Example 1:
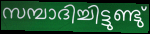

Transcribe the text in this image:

സമ്പാദിച്ചിട്ടുണ്ടു്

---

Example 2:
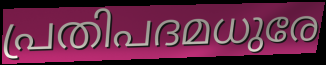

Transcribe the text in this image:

പ്രതിപദമധുരേ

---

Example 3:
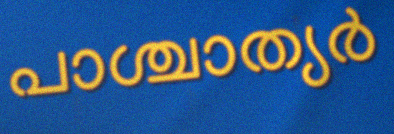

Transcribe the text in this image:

പാശ്ചാത്യർ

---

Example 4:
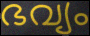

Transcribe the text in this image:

ഭവ്യം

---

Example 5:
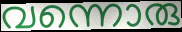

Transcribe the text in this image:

വന്നൊരു